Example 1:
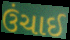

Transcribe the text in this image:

ઉંચાઈ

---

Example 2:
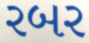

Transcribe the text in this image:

રબર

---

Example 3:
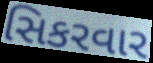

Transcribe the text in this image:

સિકરવાર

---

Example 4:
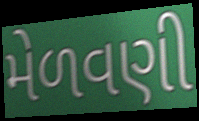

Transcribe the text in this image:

મેળવણી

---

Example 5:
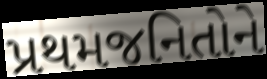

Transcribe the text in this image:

પ્રથમજનિતોને